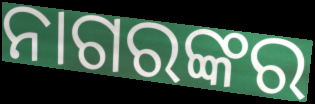
ନାଗରଙ୍କର